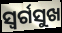
ସ୍ୱର୍ଗସୁଖ